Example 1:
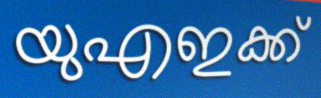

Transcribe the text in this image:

യുഎഇക്ക്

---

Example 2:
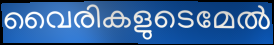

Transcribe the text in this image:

വൈരികളുടെമേൽ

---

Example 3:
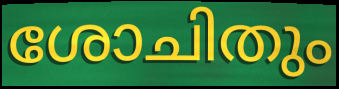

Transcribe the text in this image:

ശോചിതും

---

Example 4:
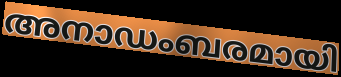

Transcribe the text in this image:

അനാഡംബരമായി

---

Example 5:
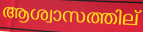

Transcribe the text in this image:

ആശ്വാസത്തില്